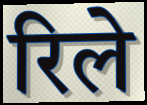
रिले